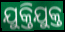
ଯୁକ୍ତିଯୁକ୍ତ